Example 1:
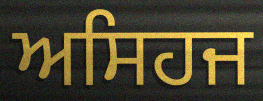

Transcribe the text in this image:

ਅਸਿਹਜ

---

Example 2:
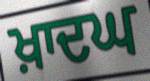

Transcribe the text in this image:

ਖ਼ਾਦਘ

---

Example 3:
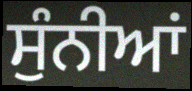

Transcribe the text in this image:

ਸੁੰਨੀਆਂ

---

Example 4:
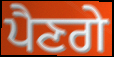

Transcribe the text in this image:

ਪੈਣਗੇ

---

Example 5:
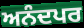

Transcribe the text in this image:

ਅਨੰਦਪਰ